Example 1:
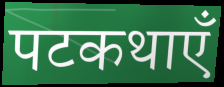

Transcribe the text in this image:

पटकथाएँ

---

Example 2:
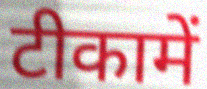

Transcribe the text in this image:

टीकामें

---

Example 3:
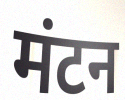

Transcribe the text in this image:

मंटन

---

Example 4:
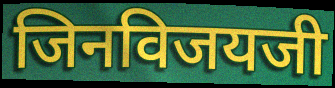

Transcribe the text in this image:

जिनविजयजी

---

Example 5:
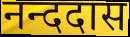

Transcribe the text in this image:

नन्ददास